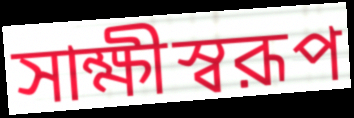
সাক্ষীস্বরূপ